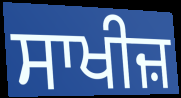
ਸਾਖੀਜ਼